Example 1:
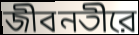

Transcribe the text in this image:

জীবনতীরে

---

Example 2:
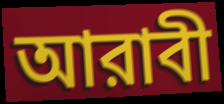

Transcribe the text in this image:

আরাবী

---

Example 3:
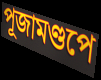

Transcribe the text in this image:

পূজামণ্ডপে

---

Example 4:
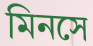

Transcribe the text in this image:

মিনসে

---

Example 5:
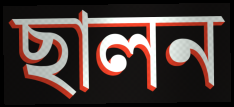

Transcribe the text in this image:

ছালন